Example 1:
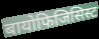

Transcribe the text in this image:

बायोफिजिसिस्ट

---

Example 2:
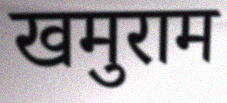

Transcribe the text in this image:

खमुराम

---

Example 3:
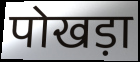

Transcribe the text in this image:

पोखड़ा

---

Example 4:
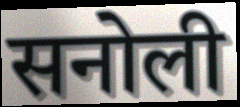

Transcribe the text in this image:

सनोली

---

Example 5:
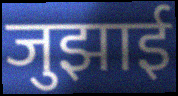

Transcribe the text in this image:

जुझाई